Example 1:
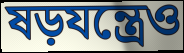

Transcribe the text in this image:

ষড়যন্ত্রেও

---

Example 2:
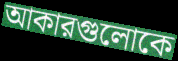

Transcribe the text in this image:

আকারগুলোকে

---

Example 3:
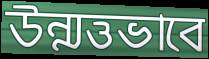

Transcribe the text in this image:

উন্মত্তভাবে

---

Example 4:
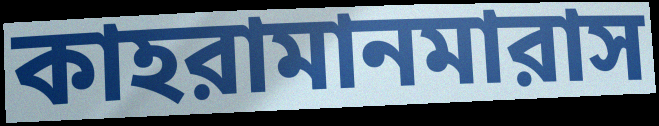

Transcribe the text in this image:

কাহরামানমারাস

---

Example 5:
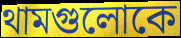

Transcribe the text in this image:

থামগুলোকে